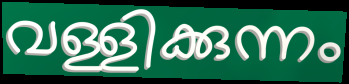
വള്ളിക്കുന്നം